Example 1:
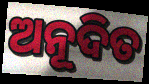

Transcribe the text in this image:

ଅନୂଦିତ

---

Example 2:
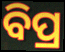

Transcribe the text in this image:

ବିପ୍ର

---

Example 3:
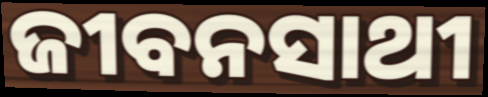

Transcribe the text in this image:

ଜୀବନସାଥୀ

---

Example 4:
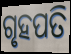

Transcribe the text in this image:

ଗୃହପତି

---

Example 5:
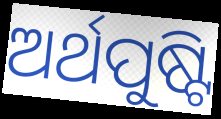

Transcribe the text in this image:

ଅର୍ଥପୁଷ୍ଟି